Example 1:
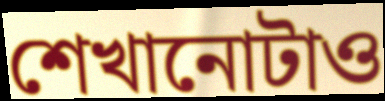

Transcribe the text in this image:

শেখানোটাও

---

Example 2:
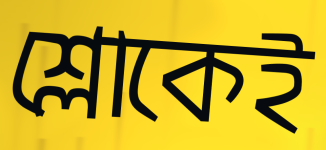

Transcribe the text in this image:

শ্লোকেই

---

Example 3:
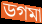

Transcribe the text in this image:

ডগমা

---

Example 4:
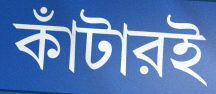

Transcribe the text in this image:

কাঁটারই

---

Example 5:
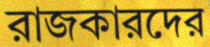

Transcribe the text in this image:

রাজকারদের